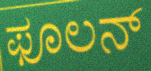
ಫೂಲನ್